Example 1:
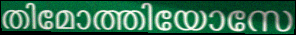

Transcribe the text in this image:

തിമോത്തിയോസേ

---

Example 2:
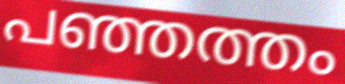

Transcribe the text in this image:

പഞ്ഞത്തം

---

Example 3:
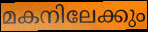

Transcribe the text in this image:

മകനിലേക്കും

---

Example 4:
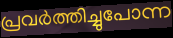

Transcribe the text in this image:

പ്രവർത്തിച്ചുപോന്ന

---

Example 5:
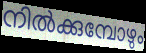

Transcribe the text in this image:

നിൽക്കുമ്പോഴും